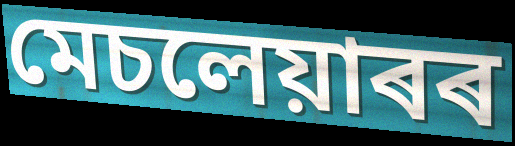
মেচলেয়াৰৰ